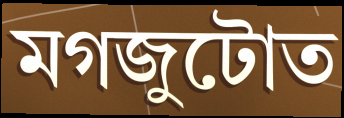
মগজুটোত